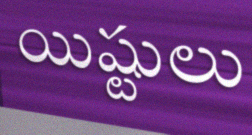
యిష్టులు